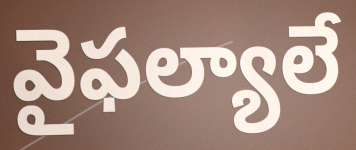
వైఫల్యాలే